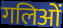
गलिओं